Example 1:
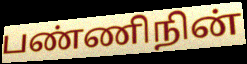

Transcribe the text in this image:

பண்ணிநின்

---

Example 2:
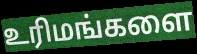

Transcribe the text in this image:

உரிமங்களை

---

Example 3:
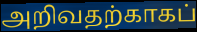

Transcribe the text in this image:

அறிவதற்காகப்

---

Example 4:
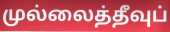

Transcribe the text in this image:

முல்லைத்தீவுப்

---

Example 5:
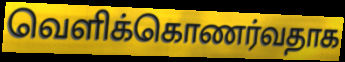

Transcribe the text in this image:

வெளிக்கொணர்வதாக